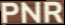
PNR